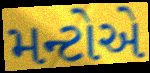
મન્ટોએ